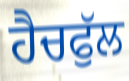
ਹੈਚਫੁੱਲ